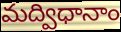
మద్విధానాం